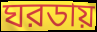
ঘরডায়